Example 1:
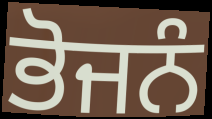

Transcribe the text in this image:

ਭੋਜਨੰ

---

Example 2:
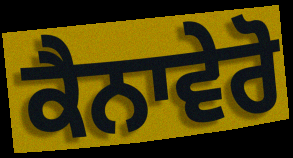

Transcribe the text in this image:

ਕੈਨਾਵੇਰੋ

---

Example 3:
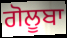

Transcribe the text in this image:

ਗੋਲੂਬਾ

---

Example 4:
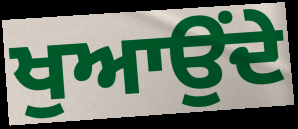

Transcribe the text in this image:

ਖੁਆਉਂਦੇ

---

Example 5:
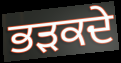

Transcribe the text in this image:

ਭੜਕਦੇ